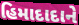
હિમાદાદાને